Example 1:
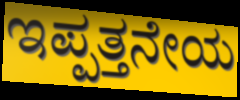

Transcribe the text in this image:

ಇಪ್ಪತ್ತನೇಯ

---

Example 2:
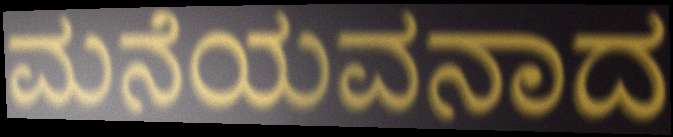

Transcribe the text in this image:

ಮನೆಯವನಾದ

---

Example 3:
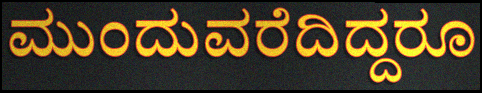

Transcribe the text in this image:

ಮುಂದುವರೆದಿದ್ದರೂ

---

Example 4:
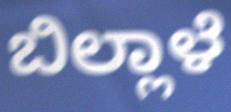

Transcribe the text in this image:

ಬಿಲ್ಲಾಳೆ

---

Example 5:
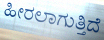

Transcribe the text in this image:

ಹೀರಲಾಗುತ್ತಿದೆ